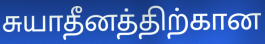
சுயாதீனத்திற்கான